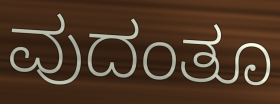
ವುದಂತೂ